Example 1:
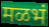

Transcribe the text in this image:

मळभं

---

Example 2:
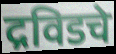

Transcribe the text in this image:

द्रविडचे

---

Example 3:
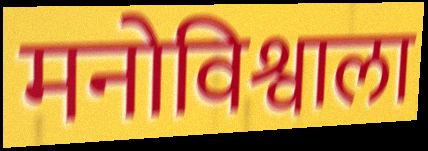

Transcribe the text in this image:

मनोविश्वाला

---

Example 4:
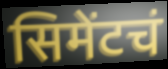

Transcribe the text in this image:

सिमेंटचं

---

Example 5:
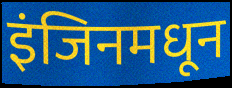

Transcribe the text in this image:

इंजिनमधून